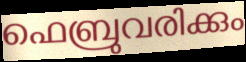
ഫെബ്രുവരിക്കും